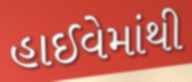
હાઈવેમાંથી